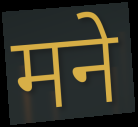
मने